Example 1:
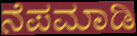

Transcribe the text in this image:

ನೆಪಮಾಡಿ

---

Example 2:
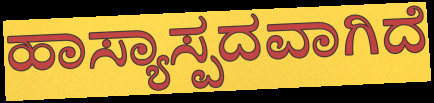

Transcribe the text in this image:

ಹಾಸ್ಯಾಸ್ಪದವಾಗಿದೆ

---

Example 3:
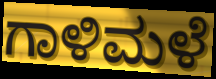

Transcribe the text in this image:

ಗಾಳಿಮಳೆ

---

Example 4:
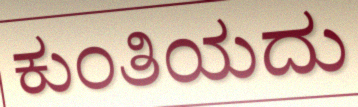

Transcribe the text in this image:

ಕುಂತಿಯದು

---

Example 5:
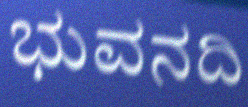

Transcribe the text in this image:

ಭುವನದಿ